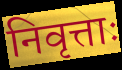
निवृत्ताः